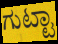
ಗುಟ್ಟಾ